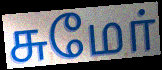
சுமேர்